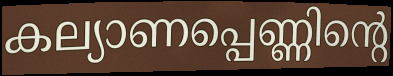
കല്യാണപ്പെണ്ണിന്റെ